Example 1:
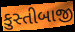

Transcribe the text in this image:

કુસ્તીબાજી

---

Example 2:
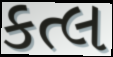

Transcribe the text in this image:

કત્લ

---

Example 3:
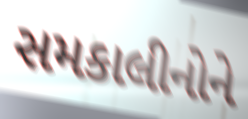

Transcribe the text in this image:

સમકાલીનોને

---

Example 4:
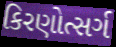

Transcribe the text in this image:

કિરણોત્સર્ગ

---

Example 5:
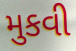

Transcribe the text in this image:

મુકવી